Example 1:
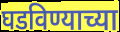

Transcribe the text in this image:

घडविण्याच्या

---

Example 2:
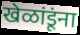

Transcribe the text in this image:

खेळांडूंना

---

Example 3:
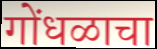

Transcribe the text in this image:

गोंधळाचा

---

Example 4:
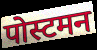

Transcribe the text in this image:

पोस्टमन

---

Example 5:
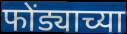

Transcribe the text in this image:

फोंड्याच्या